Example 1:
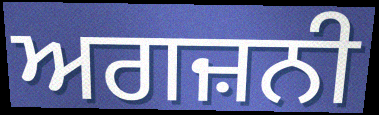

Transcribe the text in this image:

ਅਗਜ਼ਨੀ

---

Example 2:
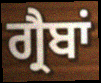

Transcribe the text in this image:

ਗ੍ਰੈਬਾਂ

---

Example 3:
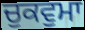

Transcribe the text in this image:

ਚੁਕਵੁਮਾ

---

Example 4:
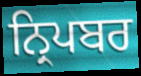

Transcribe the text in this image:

ਨ੍ਰਿਪਬਰ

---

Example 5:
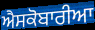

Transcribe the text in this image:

ਐਸਕੋਬਾਰੀਆ